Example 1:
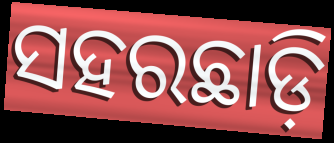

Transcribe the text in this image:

ସହରଛାଡ଼ି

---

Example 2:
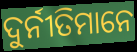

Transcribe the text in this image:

ଦୁର୍ନୀତିମାନେ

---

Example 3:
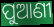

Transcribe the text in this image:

ପୁଆଣୀ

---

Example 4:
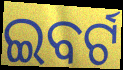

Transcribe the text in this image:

ଇବର୍ଟ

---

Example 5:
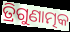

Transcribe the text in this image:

ତ୍ରିଗୁଣାତ୍ମକ